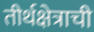
तीर्थक्षेत्राची